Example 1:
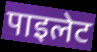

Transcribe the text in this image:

पाइलेट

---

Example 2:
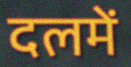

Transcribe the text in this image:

दलमें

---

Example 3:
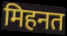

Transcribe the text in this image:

मिहनत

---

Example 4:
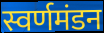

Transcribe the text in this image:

स्वर्णमंडन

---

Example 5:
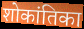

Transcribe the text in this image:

शोकांतिका